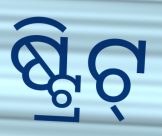
ଷ୍ଟ୍ରିଟ୍